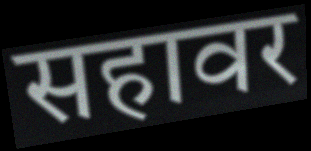
सहावर